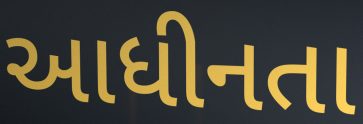
આધીનતા